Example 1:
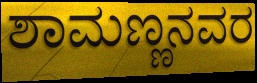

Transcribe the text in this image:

ಶಾಮಣ್ಣನವರ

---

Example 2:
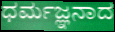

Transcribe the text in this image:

ಧರ್ಮಜ್ಞನಾದ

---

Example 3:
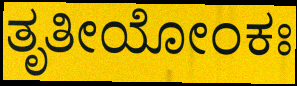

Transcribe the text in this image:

ತೃತೀಯೋಂಕಃ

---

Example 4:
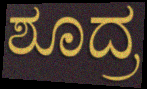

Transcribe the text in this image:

ಶೂದ್ರ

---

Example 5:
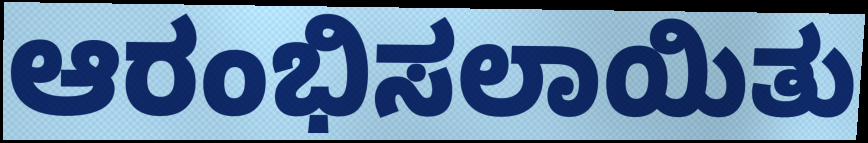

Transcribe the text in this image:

ಆರಂಭಿಸಲಾಯಿತು